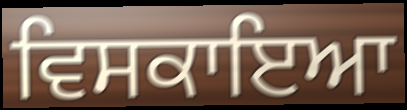
ਵਿਸਕਾਇਆ